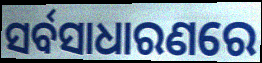
ସର୍ବସାଧାରଣରେ